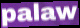
palaw